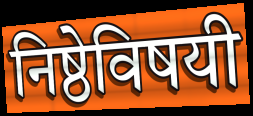
निष्ठेविषयी